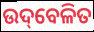
ଉଦ୍‌ବେଳିତ